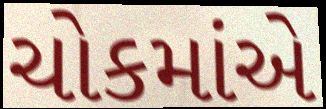
ચોકમાંએ